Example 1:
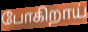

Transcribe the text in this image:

போகிறாய்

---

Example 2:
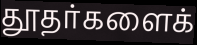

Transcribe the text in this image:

தூதர்களைக்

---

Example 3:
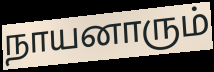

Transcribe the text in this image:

நாயனாரும்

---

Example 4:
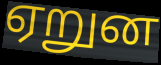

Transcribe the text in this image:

ஏறுன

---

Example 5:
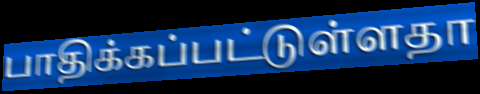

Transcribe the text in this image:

பாதிக்கப்பட்டுள்ளதா